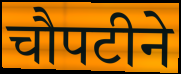
चौपटीने